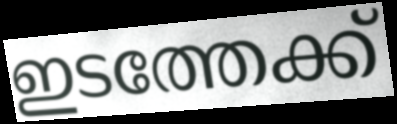
ഇടത്തേക്ക്